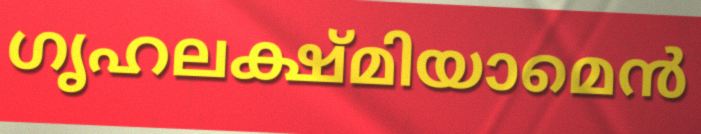
ഗൃഹലക്ഷ്മിയാമെൻ